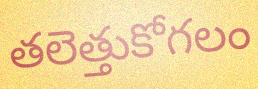
తలెత్తుకోగలం